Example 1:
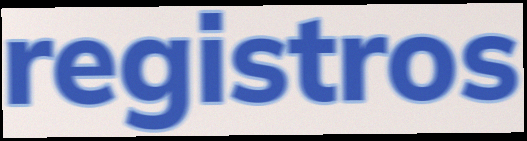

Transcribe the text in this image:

registros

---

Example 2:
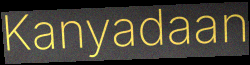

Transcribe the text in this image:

Kanyadaan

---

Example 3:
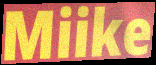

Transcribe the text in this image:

Miike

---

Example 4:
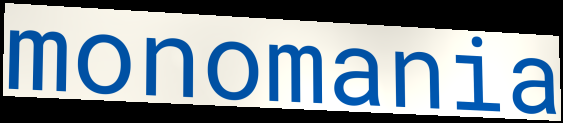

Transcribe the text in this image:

monomania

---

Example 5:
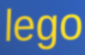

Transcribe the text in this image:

lego